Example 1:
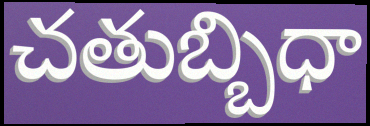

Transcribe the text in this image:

చతుబ్బిధా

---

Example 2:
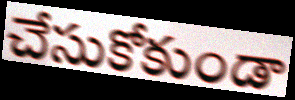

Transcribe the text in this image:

చేసుకోకుండా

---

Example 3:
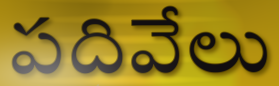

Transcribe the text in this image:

పదివేలు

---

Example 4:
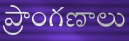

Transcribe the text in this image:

ప్రాంగణాలు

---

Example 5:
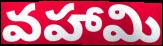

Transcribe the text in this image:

వహామి